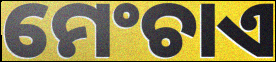
ମେଂଚାଏ